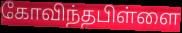
கோவிந்தபிள்ளை